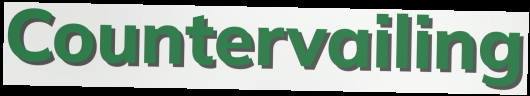
Countervailing